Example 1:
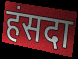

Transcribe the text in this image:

हंसदा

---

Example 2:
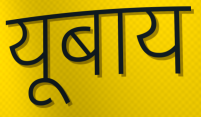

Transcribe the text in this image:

यूबाय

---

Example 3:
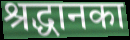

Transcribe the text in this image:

श्रद्धानका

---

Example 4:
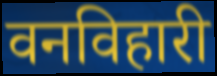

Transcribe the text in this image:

वनविहारी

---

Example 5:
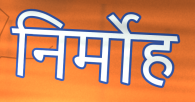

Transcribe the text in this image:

निर्मोह